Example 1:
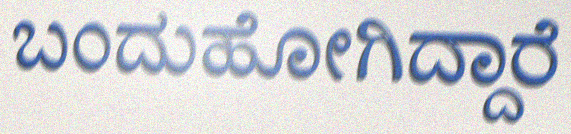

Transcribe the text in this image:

ಬಂದುಹೋಗಿದ್ದಾರೆ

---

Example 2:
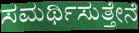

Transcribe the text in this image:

ಸಮರ್ಥಿಸುತ್ತೇನೆ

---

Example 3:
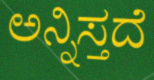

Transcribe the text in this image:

ಅನ್ನಿಸ್ತದೆ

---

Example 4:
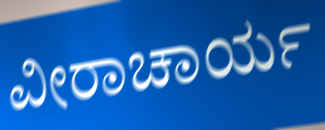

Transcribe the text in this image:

ವೀರಾಚಾರ್ಯ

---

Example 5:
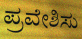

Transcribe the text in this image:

ಪ್ರವೇಶಿಸು